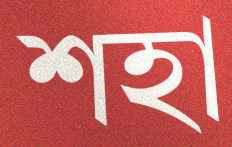
শহা